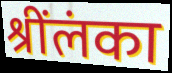
श्रींलंका